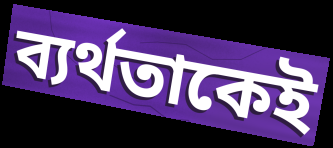
ব্যর্থতাকেই